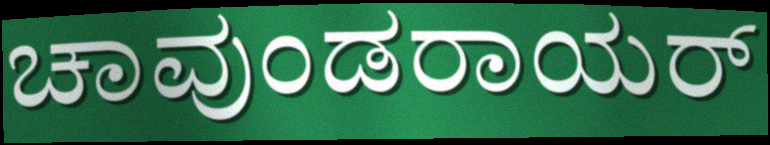
ಚಾವುಂಡರಾಯರ್